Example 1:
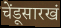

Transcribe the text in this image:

चेंडूसारखं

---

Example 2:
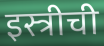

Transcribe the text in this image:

इस्त्रीची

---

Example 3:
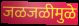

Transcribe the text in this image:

जळजळीमुळे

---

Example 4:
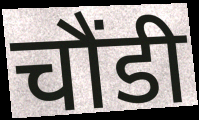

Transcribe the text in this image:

चौंडी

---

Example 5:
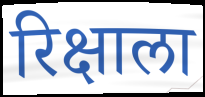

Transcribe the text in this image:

रिक्षाला